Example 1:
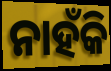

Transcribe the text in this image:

ନାହଁକି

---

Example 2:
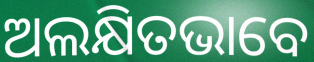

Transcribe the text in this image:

ଅଲକ୍ଷିତଭାବେ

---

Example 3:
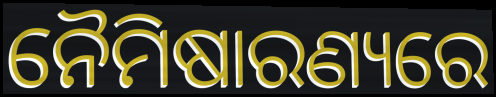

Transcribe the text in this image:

ନୈମିଷାରଣ୍ୟରେ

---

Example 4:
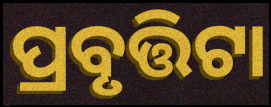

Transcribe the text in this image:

ପ୍ରବୃତ୍ତିଟା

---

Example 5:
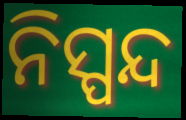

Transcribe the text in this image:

ନିସ୍ପନ୍ଦ